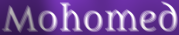
Mohomed